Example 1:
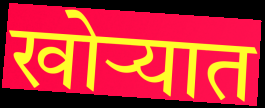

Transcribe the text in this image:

खोर्‍यात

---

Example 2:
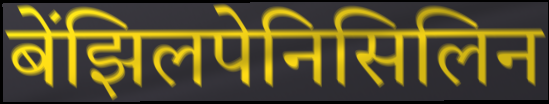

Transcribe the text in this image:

बेंझिलपेनिसिलिन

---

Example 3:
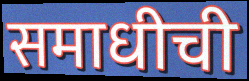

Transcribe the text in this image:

समाधीची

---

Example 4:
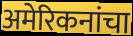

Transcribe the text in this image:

अमेरिकनांचा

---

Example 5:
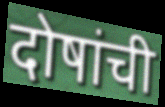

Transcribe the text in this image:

दोषांची